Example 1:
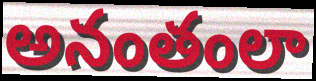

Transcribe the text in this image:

అనంతంలా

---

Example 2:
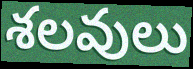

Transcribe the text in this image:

శలవులు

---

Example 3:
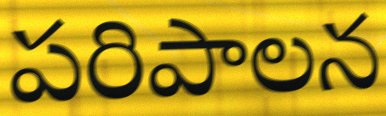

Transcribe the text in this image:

పరిపాలన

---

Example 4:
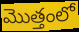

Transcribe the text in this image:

మొత్తంలో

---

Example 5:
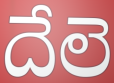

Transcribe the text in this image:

దేలె